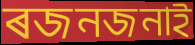
ৰজনজনাই